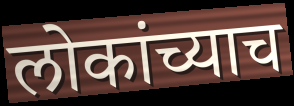
लोकांच्याच